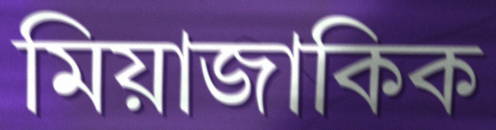
মিয়াজাকিক